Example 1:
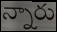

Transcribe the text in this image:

న్నారు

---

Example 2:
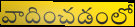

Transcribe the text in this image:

వాదించడంలో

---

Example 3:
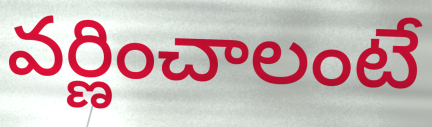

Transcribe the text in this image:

వర్ణించాలంటే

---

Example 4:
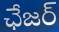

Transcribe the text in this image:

ఛేజర్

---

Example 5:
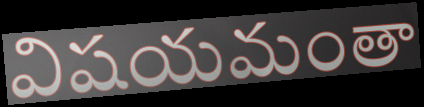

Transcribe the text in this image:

విషయమంతా